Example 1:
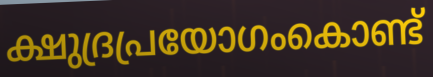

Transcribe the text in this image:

ക്ഷുദ്രപ്രയോഗംകൊണ്ട്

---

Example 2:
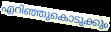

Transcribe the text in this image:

എറിഞ്ഞുകൊടുക്കും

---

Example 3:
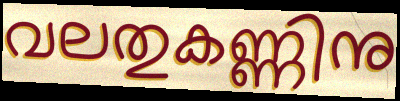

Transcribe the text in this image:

വലതുകണ്ണിനു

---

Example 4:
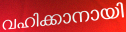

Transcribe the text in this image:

വഹിക്കാനായി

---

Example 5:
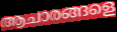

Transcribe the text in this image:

ആചാരങ്ങളെ